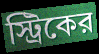
স্ট্রিকের